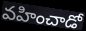
వహించాడో